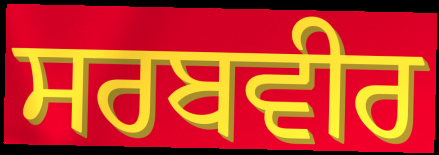
ਸਰਬਵੀਰ